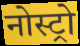
नोस्ट्रो